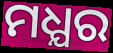
ମଧ୍ଯର